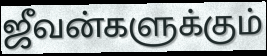
ஜீவன்களுக்கும்